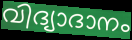
വിദ്യാദാനം